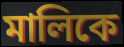
মালিকে